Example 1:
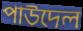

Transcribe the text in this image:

পাউদেল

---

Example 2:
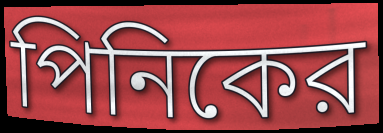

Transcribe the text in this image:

পিনিকের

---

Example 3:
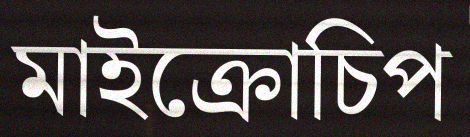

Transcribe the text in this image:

মাইক্রোচিপ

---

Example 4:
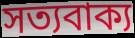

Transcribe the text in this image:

সত্যবাক্য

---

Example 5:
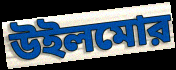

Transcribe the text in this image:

উইলমোর